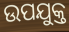
ଉପଯୁକ୍ତ